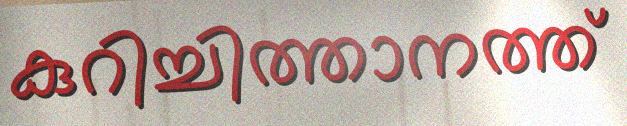
കുറിച്ചിത്താനത്ത്